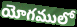
యోగములో